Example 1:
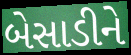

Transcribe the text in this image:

બેસાડીને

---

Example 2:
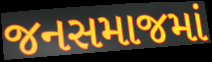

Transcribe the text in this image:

જનસમાજમાં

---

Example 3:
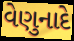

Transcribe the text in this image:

વેણુનાદે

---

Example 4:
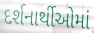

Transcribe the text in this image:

દર્શનાર્થીઓમાં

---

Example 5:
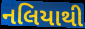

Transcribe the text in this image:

નલિયાથી